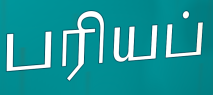
பரியப்